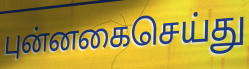
புன்னகைசெய்து